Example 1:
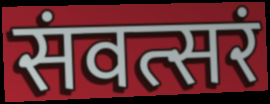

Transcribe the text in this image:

संवत्सरं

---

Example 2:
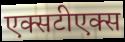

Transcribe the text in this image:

एक्सटीएक्स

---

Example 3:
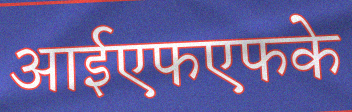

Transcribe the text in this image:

आईएफएफके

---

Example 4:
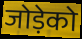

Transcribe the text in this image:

जोड़ेको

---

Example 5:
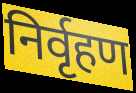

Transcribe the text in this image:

निर्वृहण